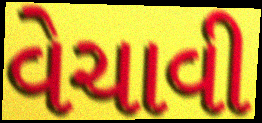
વેચાવી